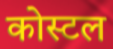
कोस्टल